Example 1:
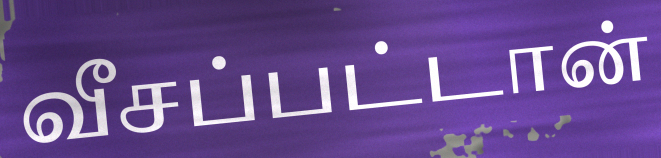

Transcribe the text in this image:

வீசப்பட்டான்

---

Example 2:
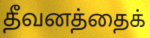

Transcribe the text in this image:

தீவனத்தைக்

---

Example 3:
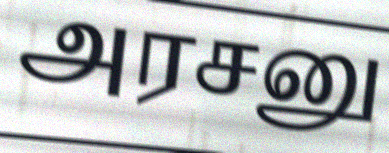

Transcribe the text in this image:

அரசனு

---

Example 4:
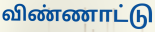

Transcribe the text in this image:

விண்ணாட்டு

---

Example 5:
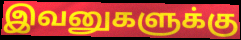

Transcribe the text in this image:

இவனுகளுக்கு